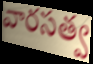
వారసత్వ